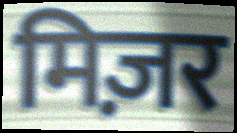
मिज़र